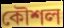
কৌশল